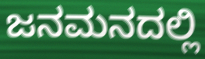
ಜನಮನದಲ್ಲಿ